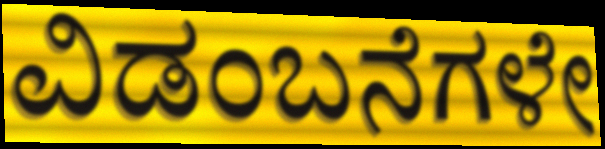
ವಿಡಂಬನೆಗಳೇ